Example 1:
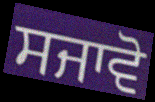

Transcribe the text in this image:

ਸਜਾਵੋ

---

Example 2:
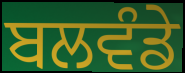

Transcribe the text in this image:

ਬਲਵੰਡੇ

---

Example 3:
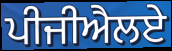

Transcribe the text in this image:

ਪੀਜੀਐਲਏ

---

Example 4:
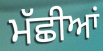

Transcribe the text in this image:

ਮੱਛੀਆਂ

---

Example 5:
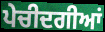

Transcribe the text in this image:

ਪੇਚੀਦਗੀਆਂ